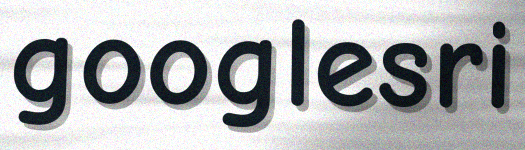
googlesri